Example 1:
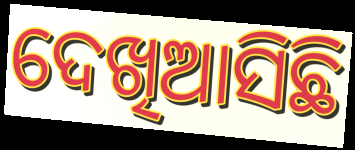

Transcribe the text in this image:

ଦେଖିଆସିଛି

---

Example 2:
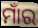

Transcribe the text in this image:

ମାଁର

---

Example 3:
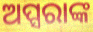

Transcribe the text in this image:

ଅପ୍ସରାଙ୍କ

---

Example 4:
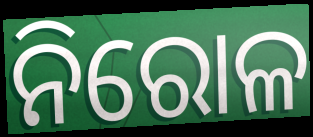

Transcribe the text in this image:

ନିରୋଳ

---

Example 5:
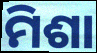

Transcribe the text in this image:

ମିଶା